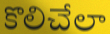
కొలిచేలా